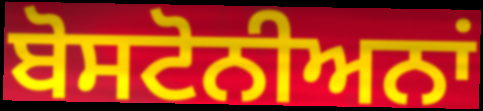
ਬੋਸਟੋਨੀਅਨਾਂ